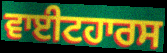
ਵਾਈਟਹਾਰਸ